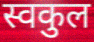
स्वकुल